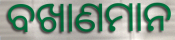
ବଖାଣମାନ